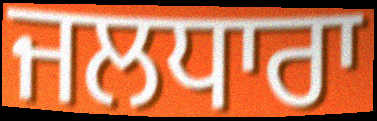
ਜਲਧਾਰਾ